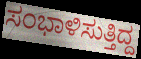
ಸಂಭಾಳಿಸುತ್ತಿದ್ದ